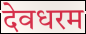
देवधरम